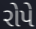
રોપે